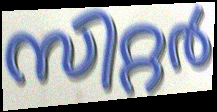
സിറ്റർ